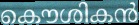
കൌശികൻ